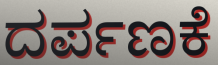
ದರ್ಪಣಕೆ